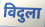
विदुला